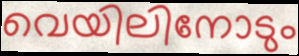
വെയിലിനോടും